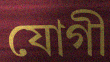
যোগী